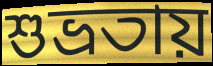
শুভ্রতায়